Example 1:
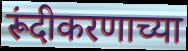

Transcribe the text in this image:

रूंदीकरणाच्या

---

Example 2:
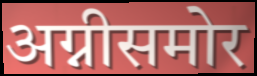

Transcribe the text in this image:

अग्नीसमोर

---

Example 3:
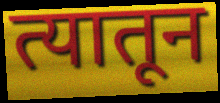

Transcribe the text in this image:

त्‍यातून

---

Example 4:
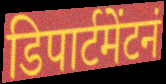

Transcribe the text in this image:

डिपार्टमेंटनं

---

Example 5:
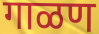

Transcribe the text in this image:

गाळण